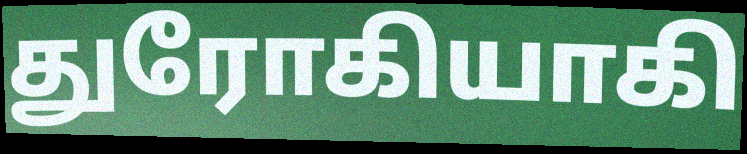
துரோகியாகி